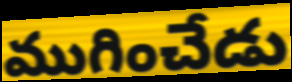
ముగించేడు